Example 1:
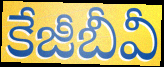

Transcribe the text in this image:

కేజీబీవీ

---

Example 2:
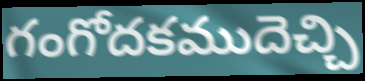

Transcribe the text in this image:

గంగోదకముదెచ్చి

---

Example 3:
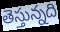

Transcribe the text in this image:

తెస్తున్నది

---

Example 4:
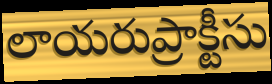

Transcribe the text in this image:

లాయరుప్రాక్టీసు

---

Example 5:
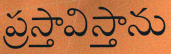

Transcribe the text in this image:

ప్రస్తావిస్తాను